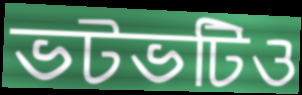
ভটভটিও